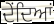
ਦੇਂਦਿਆਂ